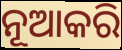
ନୂଆକରି